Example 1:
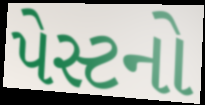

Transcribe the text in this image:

પેસ્ટનો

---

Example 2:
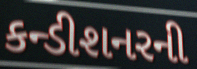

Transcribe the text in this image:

કન્ડીશનરની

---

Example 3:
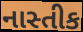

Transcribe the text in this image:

નાસ્તીક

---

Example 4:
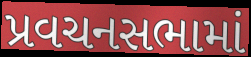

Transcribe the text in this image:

પ્રવચનસભામાં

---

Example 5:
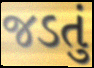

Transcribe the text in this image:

જડતું